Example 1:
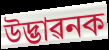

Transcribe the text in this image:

উদ্ভাৱনক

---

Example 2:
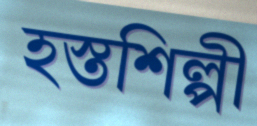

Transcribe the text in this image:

হস্তশিল্পী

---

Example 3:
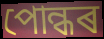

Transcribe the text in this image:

পোন্ধৰ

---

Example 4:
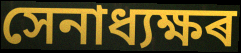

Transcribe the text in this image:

সেনাধ্যক্ষৰ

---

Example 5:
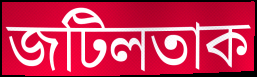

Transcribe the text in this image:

জটিলতাক